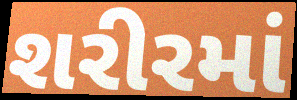
શરીરમાં